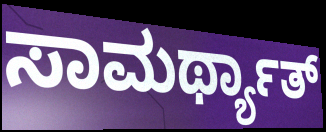
ಸಾಮರ್ಥ್ಯಾತ್